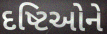
દષ્ટિઓને